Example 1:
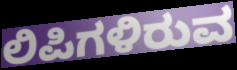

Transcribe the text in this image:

ಲಿಪಿಗಳಿರುವ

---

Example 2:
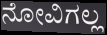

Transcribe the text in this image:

ನೋವಿಗಲ್ಲ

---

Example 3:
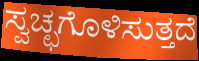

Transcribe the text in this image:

ಸ್ವಚ್ಛಗೊಳಿಸುತ್ತದೆ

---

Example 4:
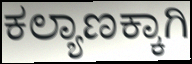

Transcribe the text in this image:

ಕಲ್ಯಾಣಕ್ಕಾಗಿ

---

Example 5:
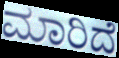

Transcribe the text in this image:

ಮಾರಿದೆ